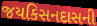
જયકિસનદાસની